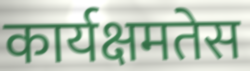
कार्यक्षमतेस